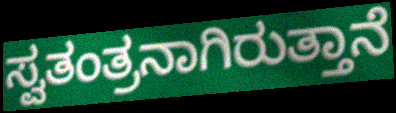
ಸ್ವತಂತ್ರನಾಗಿರುತ್ತಾನೆ